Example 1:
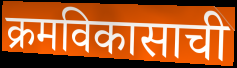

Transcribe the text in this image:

क्रमविकासाची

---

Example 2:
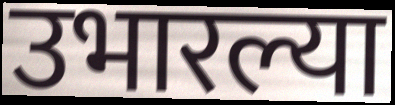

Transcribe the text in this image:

उभारल्या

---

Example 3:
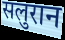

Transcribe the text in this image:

सलुरान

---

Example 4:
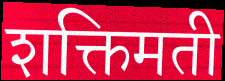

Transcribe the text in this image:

शक्तिमती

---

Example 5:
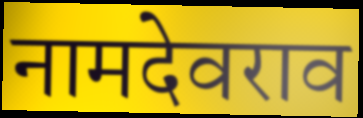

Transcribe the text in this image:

नामदेवराव